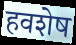
हवशेष